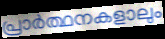
പ്രാർത്ഥനകളാലും